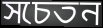
সচেতন